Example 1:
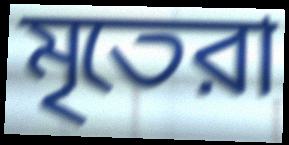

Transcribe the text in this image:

মৃতেরা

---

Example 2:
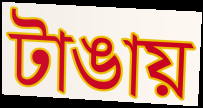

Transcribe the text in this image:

টাঙায়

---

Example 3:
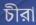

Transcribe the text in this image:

চীরা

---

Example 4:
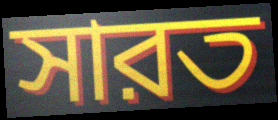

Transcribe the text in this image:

সারত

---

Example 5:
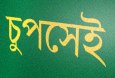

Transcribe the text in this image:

চুপসেই